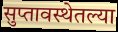
सुप्तावस्थेतल्या